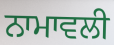
ਨਾਮਾਵਲੀ